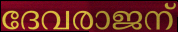
ദേവരാജന്